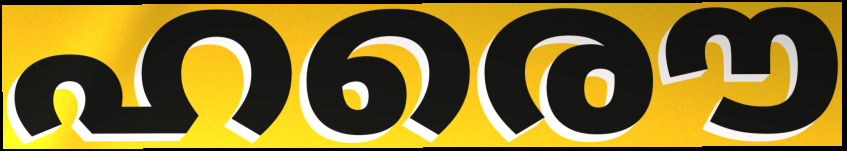
ഹരൌ